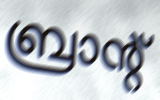
ബ്രാന്റ്